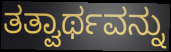
ತತ್ವಾರ್ಥವನ್ನು